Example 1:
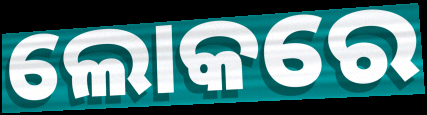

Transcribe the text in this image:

ଲୋକରେ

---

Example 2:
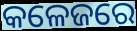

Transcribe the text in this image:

କଳେଜରେ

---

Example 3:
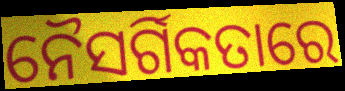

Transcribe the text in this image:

ନୈସର୍ଗିକତାରେ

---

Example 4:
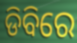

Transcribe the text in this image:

ଡିବିରେ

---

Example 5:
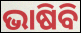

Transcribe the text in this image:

ଭାଷିବି